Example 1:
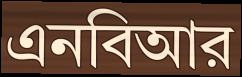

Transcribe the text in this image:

এনবিআর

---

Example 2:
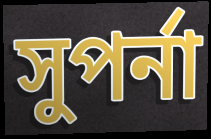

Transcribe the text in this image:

সুপর্না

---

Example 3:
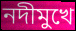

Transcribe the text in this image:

নদীমুখে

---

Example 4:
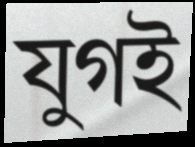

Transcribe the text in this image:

যুগই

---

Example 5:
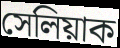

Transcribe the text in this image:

সেলিয়াক